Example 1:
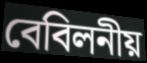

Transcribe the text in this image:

বেবিলনীয়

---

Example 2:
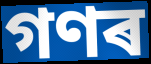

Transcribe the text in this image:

গণৰ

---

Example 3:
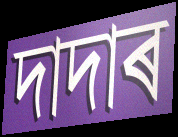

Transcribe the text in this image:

দাদাৰ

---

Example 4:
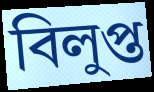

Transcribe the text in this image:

বিলুপ্ত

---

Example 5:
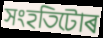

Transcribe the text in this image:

সংহতিটোৰ